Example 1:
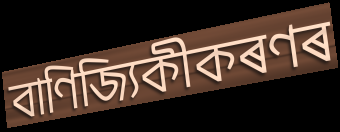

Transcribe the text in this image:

বাণিজ্যিকীকৰণৰ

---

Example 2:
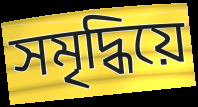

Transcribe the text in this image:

সমৃদ্ধিয়ে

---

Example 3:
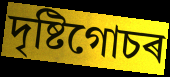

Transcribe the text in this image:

দৃষ্টিগোচৰ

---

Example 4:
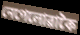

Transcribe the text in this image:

নেপেলোৱাকৈ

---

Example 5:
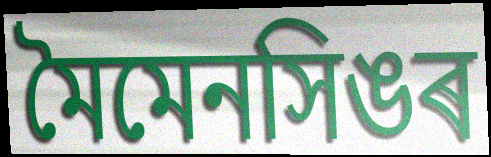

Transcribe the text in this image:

মৈমেনসিঙৰ